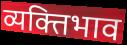
व्यक्तिभाव